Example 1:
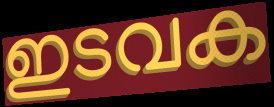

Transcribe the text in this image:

ഇടവക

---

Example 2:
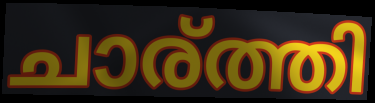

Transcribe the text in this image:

ചാര്ത്തി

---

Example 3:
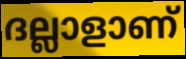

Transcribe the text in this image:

ദല്ലാളാണ്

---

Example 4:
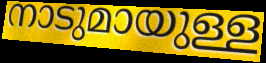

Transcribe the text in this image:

നാടുമായുള്ള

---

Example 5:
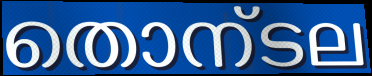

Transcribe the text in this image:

തൊന്ടല